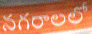
నగరాలలో